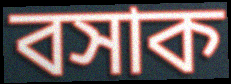
বসাক